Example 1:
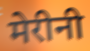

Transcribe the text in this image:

मेरीनी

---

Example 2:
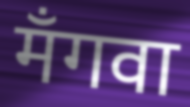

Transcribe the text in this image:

मँगवा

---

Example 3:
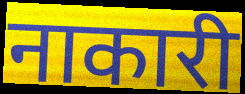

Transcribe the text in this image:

नाकारी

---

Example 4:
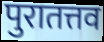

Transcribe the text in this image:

पुरातत्तव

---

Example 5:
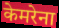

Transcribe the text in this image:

केमरेना